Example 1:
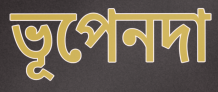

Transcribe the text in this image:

ভূপেনদা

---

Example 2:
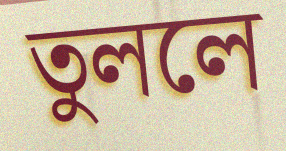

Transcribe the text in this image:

তুললে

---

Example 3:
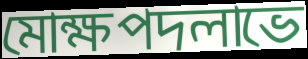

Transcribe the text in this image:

মোক্ষপদলাভে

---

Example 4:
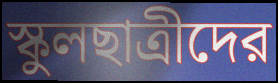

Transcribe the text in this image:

স্কুলছাত্রীদের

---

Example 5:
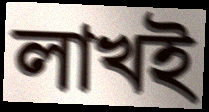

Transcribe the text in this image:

লাখই